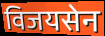
विजयसेन